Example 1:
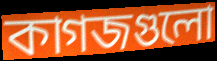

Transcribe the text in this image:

কাগজগুলো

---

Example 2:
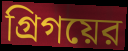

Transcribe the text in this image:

গ্রিগয়ের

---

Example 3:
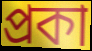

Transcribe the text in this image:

প্রকা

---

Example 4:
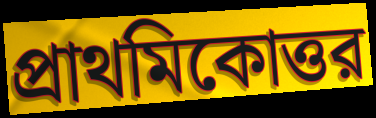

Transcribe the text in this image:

প্রাথমিকোত্তর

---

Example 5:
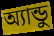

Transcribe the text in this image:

অ্যান্ডু